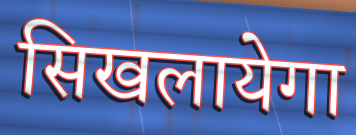
सिखलायेगा